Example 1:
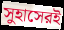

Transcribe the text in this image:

সুহাসেরই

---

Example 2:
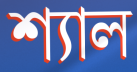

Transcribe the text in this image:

শ্যাল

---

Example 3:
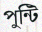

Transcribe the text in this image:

পুন্টি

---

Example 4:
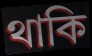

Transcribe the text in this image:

থাকি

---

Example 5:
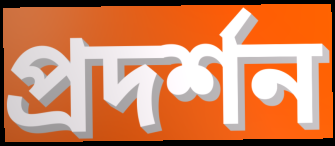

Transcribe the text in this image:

প্রদর্শন